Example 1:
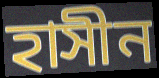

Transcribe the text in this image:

হাসীন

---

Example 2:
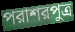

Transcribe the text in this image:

পরাশরপুত্র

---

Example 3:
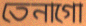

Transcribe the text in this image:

তেনাগো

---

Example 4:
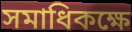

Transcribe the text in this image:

সমাধিকক্ষে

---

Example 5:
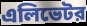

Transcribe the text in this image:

এলিভেটর